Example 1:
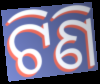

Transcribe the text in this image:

ଟିଣି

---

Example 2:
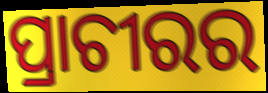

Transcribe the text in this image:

ପ୍ରାଚୀରର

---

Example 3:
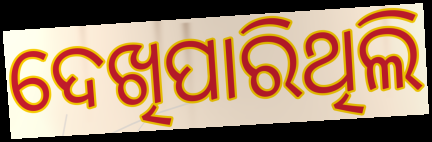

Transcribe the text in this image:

ଦେଖିପାରିଥିଲି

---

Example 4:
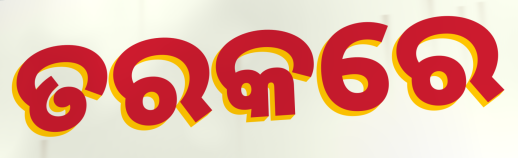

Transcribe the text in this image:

ତରକରେ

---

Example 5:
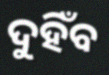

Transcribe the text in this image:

ଦୁହିଁବ